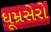
ધૂમ્રસેરો